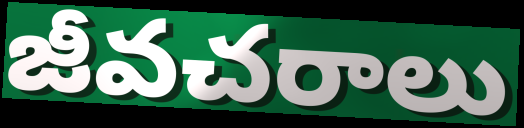
జీవచరాలు